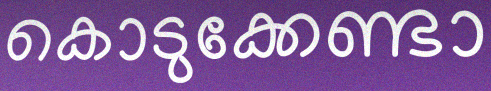
കൊടുക്കേണ്ടാ